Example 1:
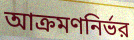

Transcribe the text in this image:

আক্রমণনির্ভর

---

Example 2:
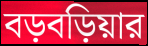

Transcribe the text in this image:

বড়বড়িয়ার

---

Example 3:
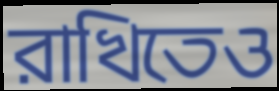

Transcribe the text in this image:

রাখিতেও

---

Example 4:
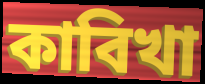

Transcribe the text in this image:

কাবিখা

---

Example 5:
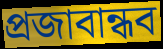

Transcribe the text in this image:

প্রজাবান্ধব